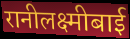
रानीलक्ष्मीबाई